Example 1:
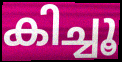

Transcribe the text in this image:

കിച്ചൂ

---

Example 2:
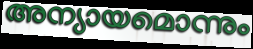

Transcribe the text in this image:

അന്യായമൊന്നും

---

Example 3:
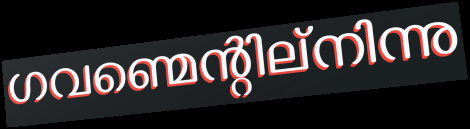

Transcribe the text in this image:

ഗവണ്മെന്റില്നിന്നു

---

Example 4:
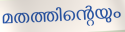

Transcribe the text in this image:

മതത്തിന്റെയും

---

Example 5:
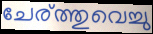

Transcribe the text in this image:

ചേര്ത്തുവെച്ചു